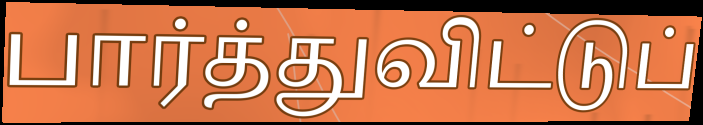
பார்த்துவிட்டுப்